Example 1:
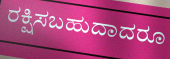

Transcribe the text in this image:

ರಕ್ಷಿಸಬಹುದಾದರೂ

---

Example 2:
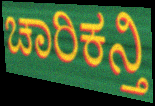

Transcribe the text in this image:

ಚಾರಿಕನ್ತಿ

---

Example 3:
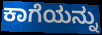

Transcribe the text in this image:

ಕಾಗೆಯನ್ನು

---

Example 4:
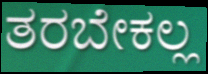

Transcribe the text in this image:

ತರಬೇಕಲ್ಲ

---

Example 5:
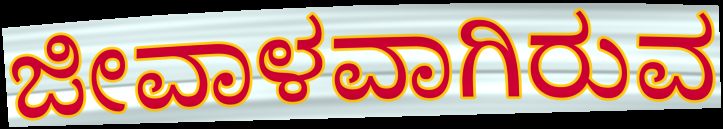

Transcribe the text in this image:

ಜೀವಾಳವಾಗಿರುವ